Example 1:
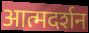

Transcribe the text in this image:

आत्मदर्शन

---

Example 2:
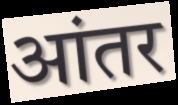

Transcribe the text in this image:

आंतर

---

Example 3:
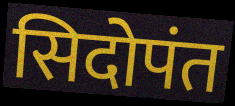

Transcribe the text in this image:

सिदोपंत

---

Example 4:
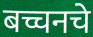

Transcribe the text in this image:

बच्चनचे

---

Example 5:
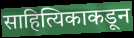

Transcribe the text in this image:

साहित्यिकाकडून